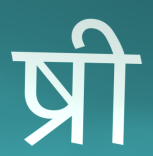
ष्री